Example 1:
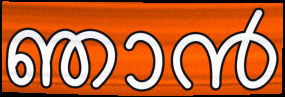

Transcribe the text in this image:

ഞാൻ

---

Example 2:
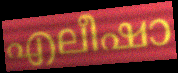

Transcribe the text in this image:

എലീഷാ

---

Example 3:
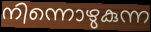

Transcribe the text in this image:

നിന്നൊഴുകുന്ന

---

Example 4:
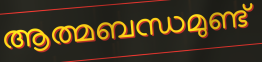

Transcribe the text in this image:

ആത്മബന്ധമുണ്ട്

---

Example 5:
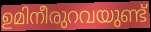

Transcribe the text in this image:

ഉമിനീരുറവയുണ്ട്